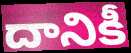
దానికీ